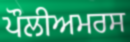
ਪੌਲੀਅਮਰਸ